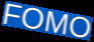
FOMO